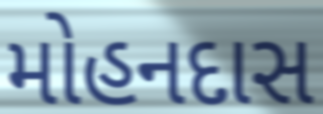
મોહનદાસ